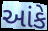
આંકે